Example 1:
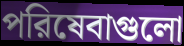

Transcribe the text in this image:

পরিষেবাগুলো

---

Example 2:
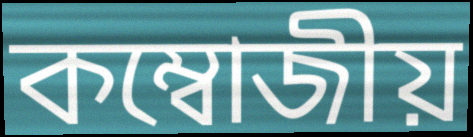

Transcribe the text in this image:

কম্বোজীয়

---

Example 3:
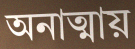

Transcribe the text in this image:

অনাত্মায়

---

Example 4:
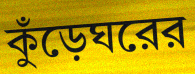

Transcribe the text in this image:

কুঁড়েঘরের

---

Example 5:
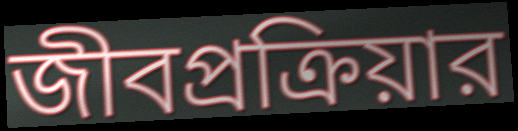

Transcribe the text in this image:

জীবপ্রক্রিয়ার